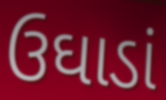
ઉઘાડાં